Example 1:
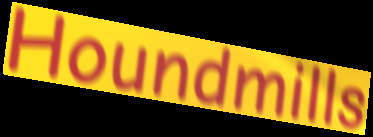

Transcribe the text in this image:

Houndmills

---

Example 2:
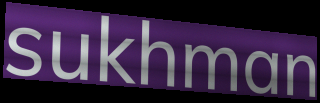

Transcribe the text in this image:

sukhman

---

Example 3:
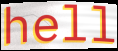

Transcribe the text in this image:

hell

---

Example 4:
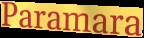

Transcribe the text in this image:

Paramara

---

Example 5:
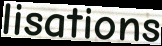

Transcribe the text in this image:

lisations